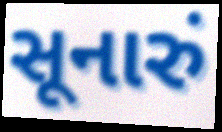
સૂનારું